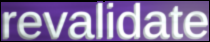
revalidate